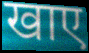
खाए